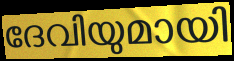
ദേവിയുമായി